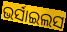
ଭର୍ସାଇଲସ